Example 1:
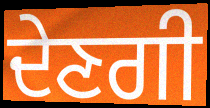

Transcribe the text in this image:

ਦੇਣਗੀ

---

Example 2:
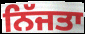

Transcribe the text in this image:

ਨਿੱਜਤਾ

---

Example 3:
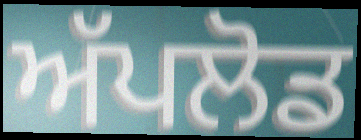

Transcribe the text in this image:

ਅੱਪਲੋਡ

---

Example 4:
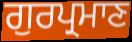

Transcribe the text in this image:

ਗੁਰਪ੍ਰਮਾਣ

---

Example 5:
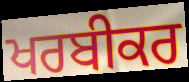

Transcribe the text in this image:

ਖਰਬੀਕਰ